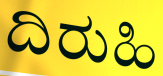
ದಿರುಹಿ